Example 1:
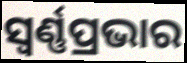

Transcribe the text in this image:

ସ୍ୱର୍ଣ୍ଣପ୍ରଭାର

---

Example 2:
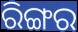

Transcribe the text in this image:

ରିଙ୍ଗର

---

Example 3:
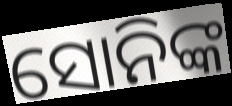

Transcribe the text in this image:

ସୋନିଙ୍କ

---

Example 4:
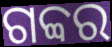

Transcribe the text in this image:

ଗବ୍ବର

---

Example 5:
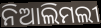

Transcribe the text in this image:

ନିଆଲିମଲୀ